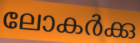
ലോകർക്കു